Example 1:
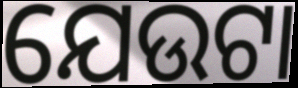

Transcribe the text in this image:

ଯେଉଟା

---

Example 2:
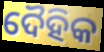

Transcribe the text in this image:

ଦୈହିକ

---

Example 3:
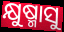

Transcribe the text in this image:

କ୍ଷୁଷ୍ମାସୁ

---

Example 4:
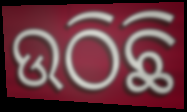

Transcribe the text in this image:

ଉଠିଛି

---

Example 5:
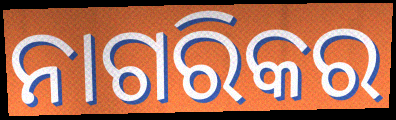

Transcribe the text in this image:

ନାଗରିକର